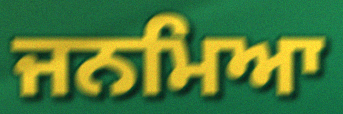
ਜਨਮਿਆ